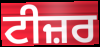
ਟੀਜ਼ਰ